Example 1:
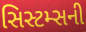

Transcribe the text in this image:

સિસ્ટમ્સની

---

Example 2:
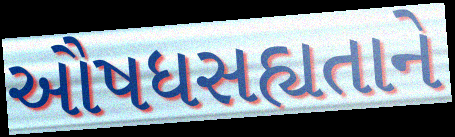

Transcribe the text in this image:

ઔષધસહ્યતાને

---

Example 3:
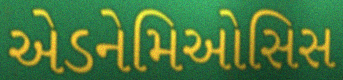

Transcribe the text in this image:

એડનેમિઓસિસ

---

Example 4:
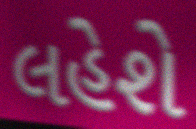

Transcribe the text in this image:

લહેશે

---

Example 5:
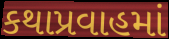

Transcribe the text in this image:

કથાપ્રવાહમાં